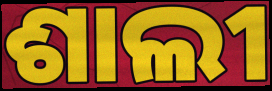
ଶାଲୀ